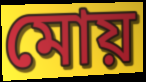
মোয়